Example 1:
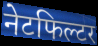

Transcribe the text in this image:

नेटफिल्टर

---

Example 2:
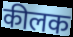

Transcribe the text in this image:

कीलक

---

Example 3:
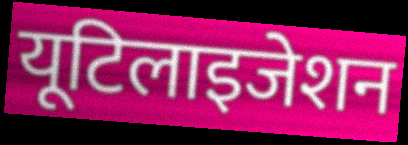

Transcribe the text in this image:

यूटिलाइजेशन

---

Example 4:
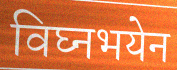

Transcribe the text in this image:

विघ्नभयेन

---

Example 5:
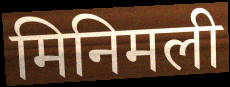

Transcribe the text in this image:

मिनिमली